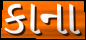
કાના